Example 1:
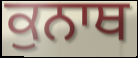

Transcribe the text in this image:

ਕੁਨਾਥ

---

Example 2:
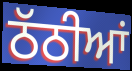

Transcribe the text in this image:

ਠੱਠੀਆਂ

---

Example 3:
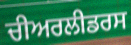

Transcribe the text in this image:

ਚੀਅਰਲੀਡਰਸ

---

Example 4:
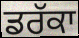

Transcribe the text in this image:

ਡਰੱਕਾ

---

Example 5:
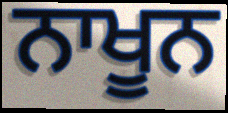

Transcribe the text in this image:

ਨਾਖੂਨ